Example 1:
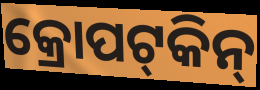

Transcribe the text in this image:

କ୍ରୋପଟ୍‍କିନ୍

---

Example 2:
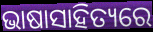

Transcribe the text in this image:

ଭାଷାସାହିତ୍ୟରେ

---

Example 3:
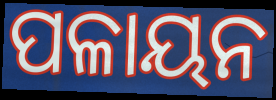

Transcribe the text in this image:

ପଳାୟନ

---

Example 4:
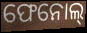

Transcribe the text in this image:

ଫେନୋଲ୍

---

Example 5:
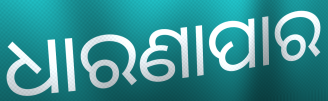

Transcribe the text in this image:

ଧାରଣାପାର